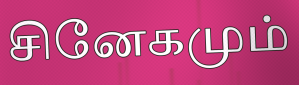
சினேகமும்